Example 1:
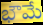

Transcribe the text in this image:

భౌమే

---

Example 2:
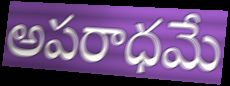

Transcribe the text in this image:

అపరాధమే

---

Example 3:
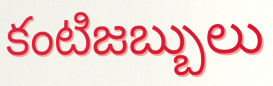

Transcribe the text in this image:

కంటిజబ్బులు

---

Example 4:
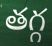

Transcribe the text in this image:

తగ్గ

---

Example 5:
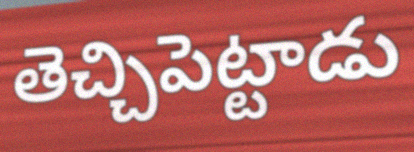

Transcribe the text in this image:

తెచ్చిపెట్టాడు